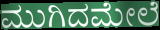
ಮುಗಿದಮೇಲೆ